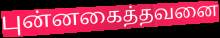
புன்னகைத்தவனை